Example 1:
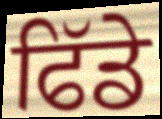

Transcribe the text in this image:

ਫਿੱਡੇ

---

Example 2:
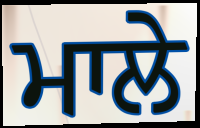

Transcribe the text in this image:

ਮਾਲੇ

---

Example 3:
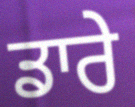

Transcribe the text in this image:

ਡਾਰੇ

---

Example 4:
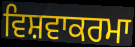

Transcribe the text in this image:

ਵਿਸ਼ਵਾਕਰਮਾ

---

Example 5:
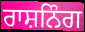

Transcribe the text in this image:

ਰਾਸ਼ਨਿੰਗ